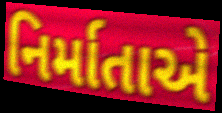
નિર્માતાએ